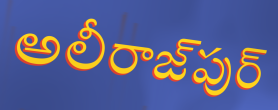
అలీరాజ్‌పుర్